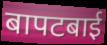
बापटबाई